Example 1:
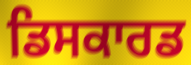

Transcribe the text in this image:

ਡਿਸਕਾਰਡ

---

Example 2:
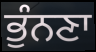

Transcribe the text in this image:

ਭੁੰਨਣਾ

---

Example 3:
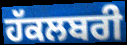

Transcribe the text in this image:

ਹੱਕਲਬਰੀ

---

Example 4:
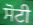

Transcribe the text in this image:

ਸੋਟੀ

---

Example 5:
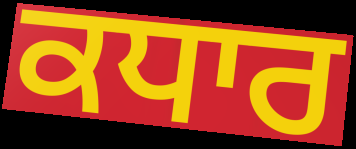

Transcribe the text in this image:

ਕਧਾਰ